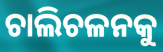
ଚାଲିଚଳନକୁ